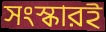
সংস্কারই